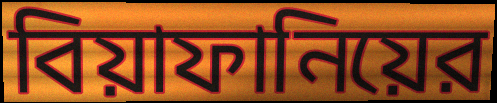
বিয়াফানিয়ের